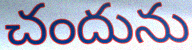
చందును